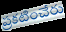
ప్రకటించేరు